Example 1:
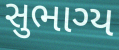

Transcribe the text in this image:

સુભાગ્ય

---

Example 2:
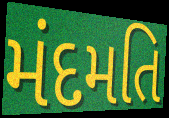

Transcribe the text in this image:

મંદમતિ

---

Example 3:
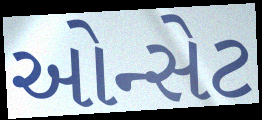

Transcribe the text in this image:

ઓન્સેટ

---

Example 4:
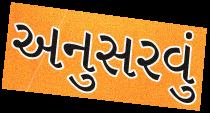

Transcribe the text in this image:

અનુસરવું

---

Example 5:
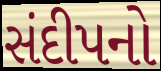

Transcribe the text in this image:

સંદીપનો